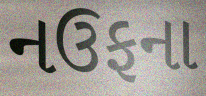
નઉફના